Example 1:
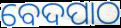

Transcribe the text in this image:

ବେଦପାଠ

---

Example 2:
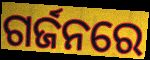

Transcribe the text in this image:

ଗର୍ଜନରେ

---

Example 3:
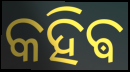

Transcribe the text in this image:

କହିଵ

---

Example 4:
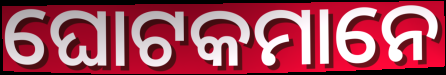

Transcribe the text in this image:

ଘୋଟକମାନେ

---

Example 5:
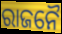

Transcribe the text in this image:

ରାଜନୈ